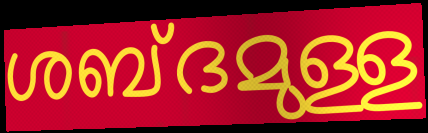
ശബ്ദമുള്ള